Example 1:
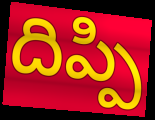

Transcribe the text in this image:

దిప్పి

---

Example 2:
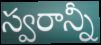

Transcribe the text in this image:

స్వరాన్నీ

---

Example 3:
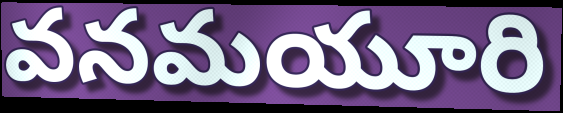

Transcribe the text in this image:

వనమయూరి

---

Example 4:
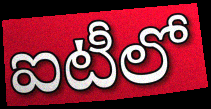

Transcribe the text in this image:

ఐటీలో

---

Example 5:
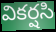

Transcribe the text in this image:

వికర్షసి